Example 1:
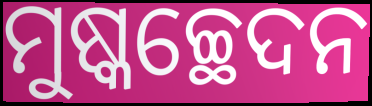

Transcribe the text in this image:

ମୁଷ୍କଚ୍ଛେଦନ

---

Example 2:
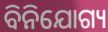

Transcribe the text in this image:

ବିନିଯୋଗ୍ୟ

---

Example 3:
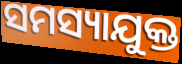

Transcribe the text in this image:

ସମସ୍ୟାଯୁକ୍ତ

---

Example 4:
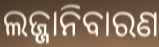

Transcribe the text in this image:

ଲଜ୍ଜାନିବାରଣ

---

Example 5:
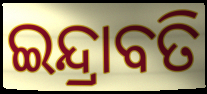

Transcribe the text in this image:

ଇନ୍ଦ୍ରାବତି